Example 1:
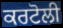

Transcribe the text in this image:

ਕਰਟੋਲੀ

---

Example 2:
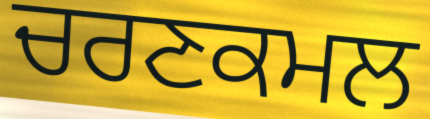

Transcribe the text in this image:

ਚਰਣਕਮਲ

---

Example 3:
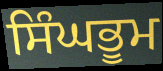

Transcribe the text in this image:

ਸਿੰਘਭੂਮ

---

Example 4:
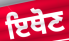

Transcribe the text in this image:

ਇਥੋਣ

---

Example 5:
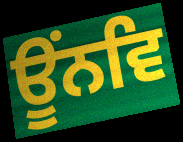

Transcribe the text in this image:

ਊਂਨਵਿ